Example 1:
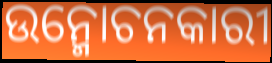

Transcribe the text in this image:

ଉନ୍ମୋଚନକାରୀ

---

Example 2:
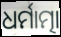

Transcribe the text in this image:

ଧର୍ମାତ୍ମା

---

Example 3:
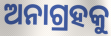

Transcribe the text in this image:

ଅନାଗ୍ରହକୁ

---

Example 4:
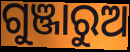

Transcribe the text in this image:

ଗୁଞ୍ଜାରୁଅ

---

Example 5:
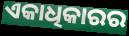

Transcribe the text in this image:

ଏକାଧିକାରର